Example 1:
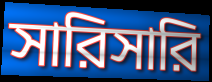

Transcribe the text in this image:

সারিসারি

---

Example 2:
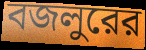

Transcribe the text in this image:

বজলুরের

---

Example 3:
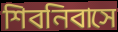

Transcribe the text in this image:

শিবনিবাসে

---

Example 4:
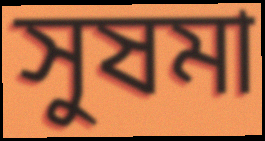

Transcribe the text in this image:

সুষমা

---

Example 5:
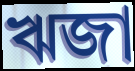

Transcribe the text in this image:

ঋজা